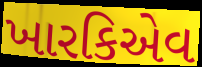
ખારકિએવ